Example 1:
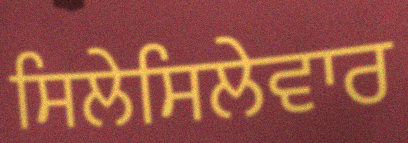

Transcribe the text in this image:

ਸਿਲੇਸਿਲੇਵਾਰ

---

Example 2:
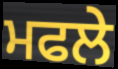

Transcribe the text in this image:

ਮਫਲੇ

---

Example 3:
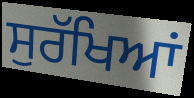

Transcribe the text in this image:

ਸੁਰੱਖਿਆਂ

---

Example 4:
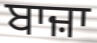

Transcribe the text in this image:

ਬਾਜ਼ਾ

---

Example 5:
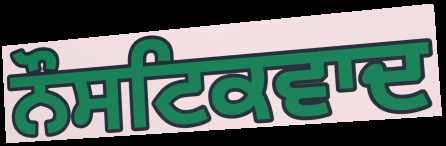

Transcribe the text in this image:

ਨੌਸਟਿਕਵਾਦ